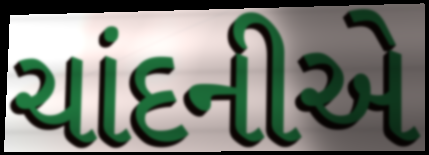
ચાંદનીએ